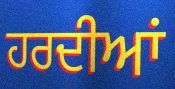
ਹਰਦੀਆਂ